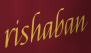
rishaban